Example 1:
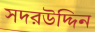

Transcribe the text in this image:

সদরউদ্দিন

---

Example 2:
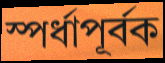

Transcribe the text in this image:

স্পর্ধাপূর্বক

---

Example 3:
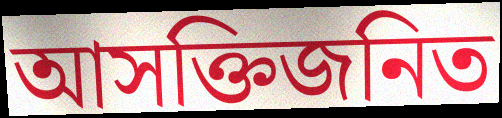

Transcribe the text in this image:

আসক্তিজনিত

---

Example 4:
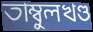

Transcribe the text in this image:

তাম্বুলখণ্ড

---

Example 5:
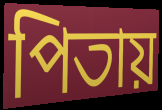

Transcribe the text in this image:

পিতায়